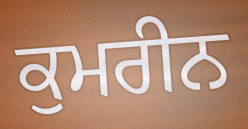
ਕੁਮਰੀਨ